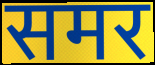
समर